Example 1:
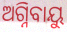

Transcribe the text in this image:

ଅଗ୍ନିବାୟୁ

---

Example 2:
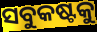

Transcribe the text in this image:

ସବୁକଷ୍ଟକୁ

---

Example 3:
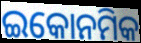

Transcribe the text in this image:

ଇକୋନମିକ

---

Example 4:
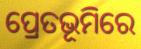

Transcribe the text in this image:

ପ୍ରେତଭୂମିରେ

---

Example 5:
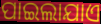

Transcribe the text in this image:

ପାଇଲାଯାଏ